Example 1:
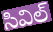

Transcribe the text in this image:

సివిల్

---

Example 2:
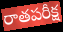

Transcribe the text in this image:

రాతపరీక్ష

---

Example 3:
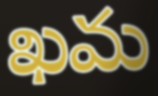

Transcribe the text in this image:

ఖమ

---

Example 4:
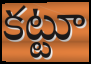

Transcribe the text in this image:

కట్టూ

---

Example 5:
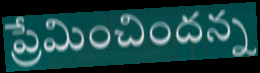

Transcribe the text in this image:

ప్రేమించిందన్న